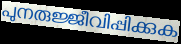
പുനരുജ്ജീവിപ്പിക്കുക